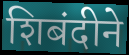
शिबंदीने